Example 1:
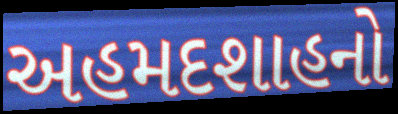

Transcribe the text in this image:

અહમદશાહનો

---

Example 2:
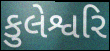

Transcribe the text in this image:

કુલેશ્વરિ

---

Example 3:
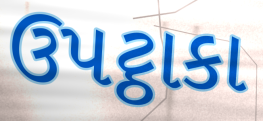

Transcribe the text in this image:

ઉપટ્ઠાકા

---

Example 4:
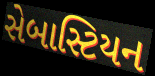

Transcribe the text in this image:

સેબાસ્ટિયન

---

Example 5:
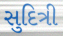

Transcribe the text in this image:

સુદિત્રી